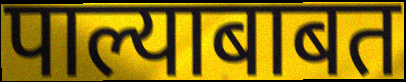
पाल्याबाबत